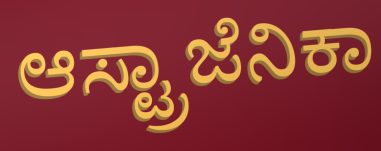
ಆಸ್ಟ್ರಾಜೆನಿಕಾ